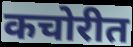
कचोरीत